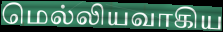
மெல்லியவாகிய